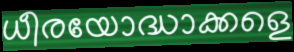
ധീരയോദ്ധാക്കളെ